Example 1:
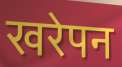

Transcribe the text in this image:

खरेपन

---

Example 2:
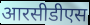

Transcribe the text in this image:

आरसीडीएस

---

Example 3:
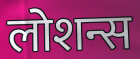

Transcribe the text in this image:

लोशन्स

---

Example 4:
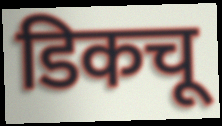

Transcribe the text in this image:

डिकचू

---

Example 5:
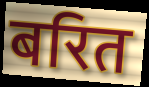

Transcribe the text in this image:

बरित